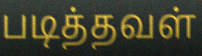
படித்தவள்